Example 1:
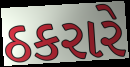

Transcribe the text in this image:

ઠકરારે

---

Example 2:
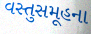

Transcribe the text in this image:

વસ્તુસમૂહના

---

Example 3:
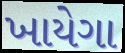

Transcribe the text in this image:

ખાયેગા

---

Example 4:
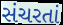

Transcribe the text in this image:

સંચરતાં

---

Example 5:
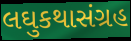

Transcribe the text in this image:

લઘુકથાસંગ્રહ